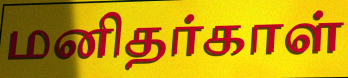
மனிதர்காள்